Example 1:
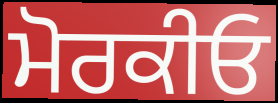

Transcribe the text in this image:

ਮੋਰਕੀਓ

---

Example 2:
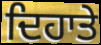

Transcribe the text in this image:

ਦਿਹਾਤੇ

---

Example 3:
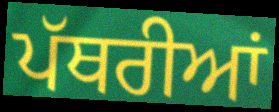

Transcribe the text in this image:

ਪੱਥਰੀਆਂ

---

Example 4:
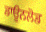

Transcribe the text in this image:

ਡਾਊਨਲੋਡ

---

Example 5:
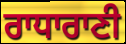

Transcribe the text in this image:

ਰਾਧਾਰਾਣੀ